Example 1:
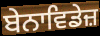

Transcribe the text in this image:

ਬੇਨਾਵਿਡੇਜ਼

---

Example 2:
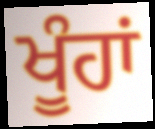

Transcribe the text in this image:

ਖੂੰਹਾਂ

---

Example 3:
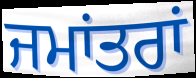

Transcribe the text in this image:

ਜਮਾਂਤਰਾਂ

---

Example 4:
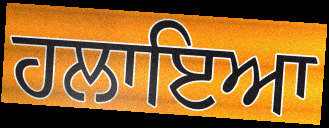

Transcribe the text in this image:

ਹਲਾਇਆ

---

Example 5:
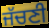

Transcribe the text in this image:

ਜੱਚਣੀ